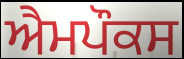
ਐਮਪੌਕਸ